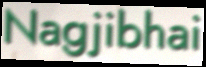
Nagjibhai